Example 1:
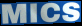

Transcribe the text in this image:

MICS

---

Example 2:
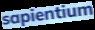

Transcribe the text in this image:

sapientium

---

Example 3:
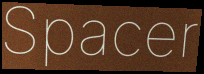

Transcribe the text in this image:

Spacer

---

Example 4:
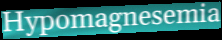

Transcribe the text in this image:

Hypomagnesemia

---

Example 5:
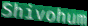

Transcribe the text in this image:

Shivohum